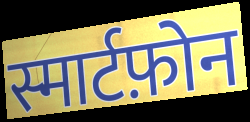
स्‍मार्टफ़ोन